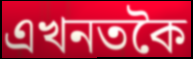
এখনতকৈ